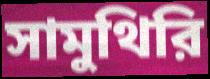
সামুথিরি